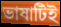
ভাষাটিই